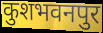
कुशभवनपुर